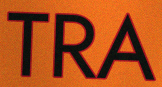
TRA